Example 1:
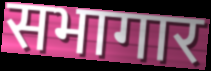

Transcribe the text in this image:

सभागार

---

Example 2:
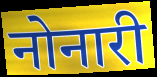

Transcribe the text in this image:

नोनारी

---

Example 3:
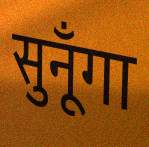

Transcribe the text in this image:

सुनूँगा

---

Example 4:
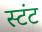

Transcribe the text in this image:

स्टंट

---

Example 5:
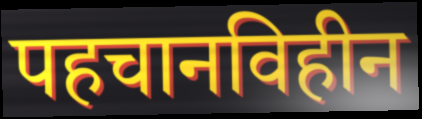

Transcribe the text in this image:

पहचानविहीन